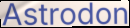
Astrodon